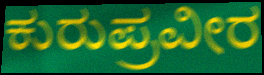
ಕುರುಪ್ರವೀರ